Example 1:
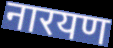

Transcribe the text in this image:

नारयण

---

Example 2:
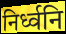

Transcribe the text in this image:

निर्ध्वनि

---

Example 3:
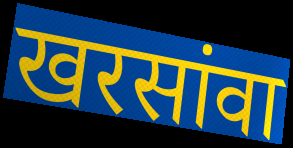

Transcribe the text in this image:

खरसांवा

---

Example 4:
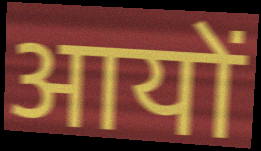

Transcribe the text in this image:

आयों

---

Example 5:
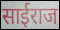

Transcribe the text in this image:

साईराज